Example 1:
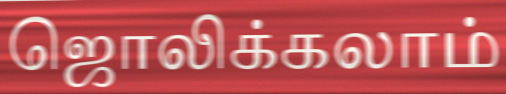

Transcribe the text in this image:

ஜொலிக்கலாம்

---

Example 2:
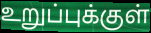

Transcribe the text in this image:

உறுப்புக்குள்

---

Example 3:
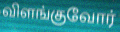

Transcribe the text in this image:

விளங்குவோர்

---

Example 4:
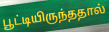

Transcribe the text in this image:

பூட்டியிருந்ததால்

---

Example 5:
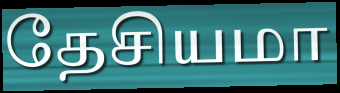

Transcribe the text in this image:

தேசியமா